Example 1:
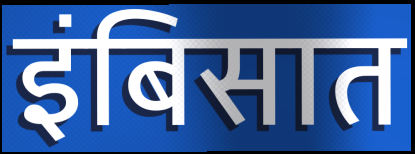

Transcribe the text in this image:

इंबिसात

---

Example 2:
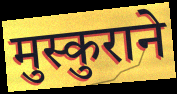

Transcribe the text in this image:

मुस्‍कुराने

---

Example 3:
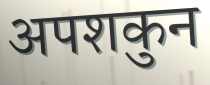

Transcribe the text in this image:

अपशकुन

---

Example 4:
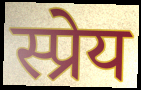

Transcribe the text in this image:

स्प्रेय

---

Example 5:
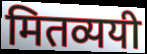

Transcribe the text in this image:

मितव्ययी